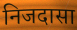
निजदासा